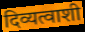
दिव्यत्वाशी